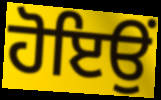
ਹੋਇਉਂ